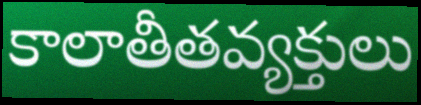
కాలాతీతవ్యక్తులు